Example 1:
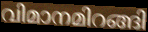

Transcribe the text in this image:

വിമാനമിറങ്ങി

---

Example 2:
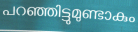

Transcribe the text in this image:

പറഞ്ഞിട്ടുമുണ്ടാകും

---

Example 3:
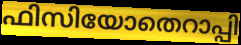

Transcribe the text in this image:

ഫിസിയോതെറാപ്പി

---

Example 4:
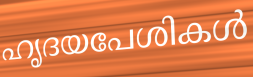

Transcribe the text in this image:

ഹൃദയപേശികൾ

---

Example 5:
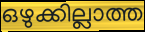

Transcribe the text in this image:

ഒഴുക്കില്ലാത്ത